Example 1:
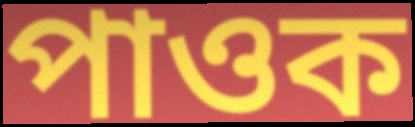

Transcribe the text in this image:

পাওক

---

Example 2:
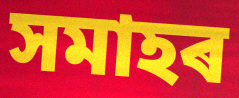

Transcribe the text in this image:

সমাহৰ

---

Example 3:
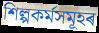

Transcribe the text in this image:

শিল্পকৰ্মসমূহৰ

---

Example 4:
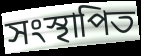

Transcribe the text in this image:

সংস্থাপিত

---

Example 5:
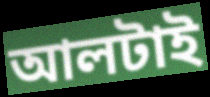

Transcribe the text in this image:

আলটাই